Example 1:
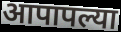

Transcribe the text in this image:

आपापल्या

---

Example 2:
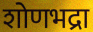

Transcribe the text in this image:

शोणभद्रा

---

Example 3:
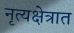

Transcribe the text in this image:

नृत्यक्षेत्रात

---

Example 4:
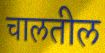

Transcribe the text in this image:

चालतील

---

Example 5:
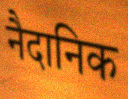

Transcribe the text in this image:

नैदानिक